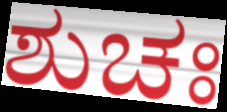
ಶುಚಃ